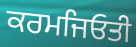
ਕਰਮਜਿਓਤੀ